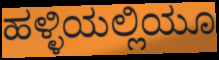
ಹಳ್ಳಿಯಲ್ಲಿಯೂ